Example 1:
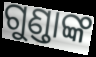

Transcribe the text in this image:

ଗୁଣ୍ଡାଙ୍କ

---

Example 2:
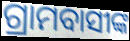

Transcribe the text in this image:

ଗ୍ରାମବାସୀଙ୍କ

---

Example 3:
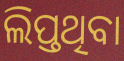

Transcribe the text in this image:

ଲିପ୍ତଥିବା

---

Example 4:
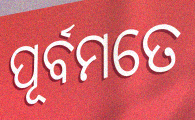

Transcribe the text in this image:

ପୂର୍ବମତେ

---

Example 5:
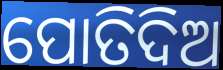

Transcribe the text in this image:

ପୋତିଦିଅ